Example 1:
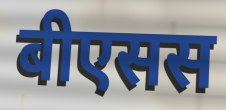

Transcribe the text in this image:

बीएसस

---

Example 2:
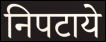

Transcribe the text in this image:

निपटाये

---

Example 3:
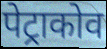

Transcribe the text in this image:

पेट्राकोव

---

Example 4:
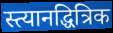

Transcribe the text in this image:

स्त्यानद्धित्रिक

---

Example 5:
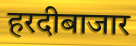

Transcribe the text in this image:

हरदीबाजार